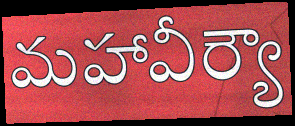
మహావీర్యౌ